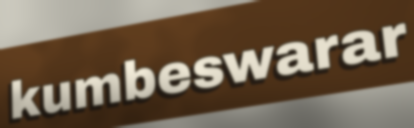
kumbeswarar